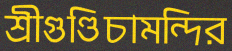
শ্রীগুণ্ডিচামন্দির